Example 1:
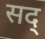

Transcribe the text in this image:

सद्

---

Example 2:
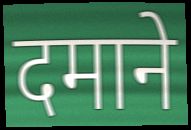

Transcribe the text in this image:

दमाने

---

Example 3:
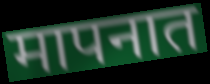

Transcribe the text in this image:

मापनात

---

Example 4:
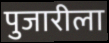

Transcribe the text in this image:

पुजारीला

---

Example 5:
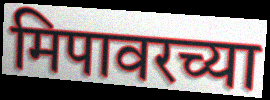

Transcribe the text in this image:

मिपावरच्या